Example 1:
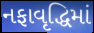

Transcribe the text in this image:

નફાવૃદ્ધિમાં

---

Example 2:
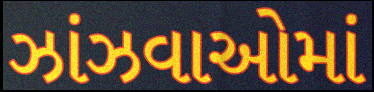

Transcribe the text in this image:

ઝાંઝવાઓમાં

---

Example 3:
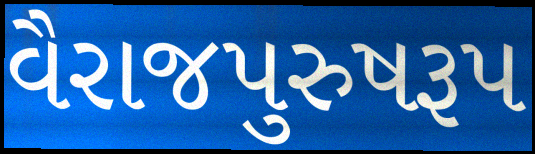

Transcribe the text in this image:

વૈરાજપુરુષરૂપ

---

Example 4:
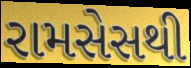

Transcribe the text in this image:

રામસેસથી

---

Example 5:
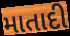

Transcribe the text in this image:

માતાદી